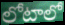
లోటాలో